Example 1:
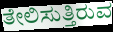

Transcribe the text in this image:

ತೇಲಿಸುತ್ತಿರುವ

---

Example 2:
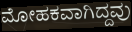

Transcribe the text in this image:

ಮೋಹಕವಾಗಿದ್ದವು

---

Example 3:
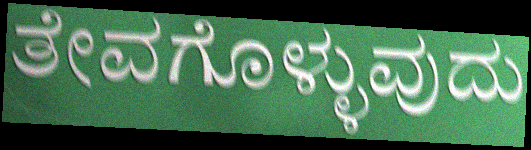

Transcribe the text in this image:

ತೇವಗೊಳ್ಳುವುದು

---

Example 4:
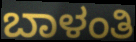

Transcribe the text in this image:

ಬಾಳಂತಿ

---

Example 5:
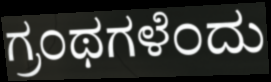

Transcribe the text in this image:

ಗ್ರಂಥಗಳೆಂದು